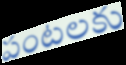
పంటలకు